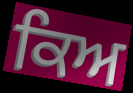
ਕਿਅ